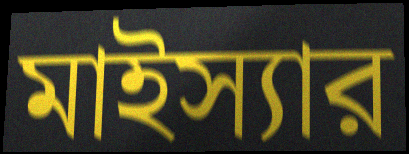
মাইস্যার